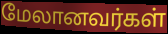
மேலானவர்கள்